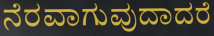
ನೆರವಾಗುವುದಾದರೆ